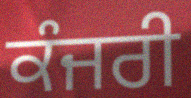
ਕੰਜਰੀ